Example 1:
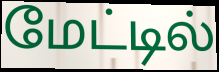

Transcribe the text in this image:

மேட்டில்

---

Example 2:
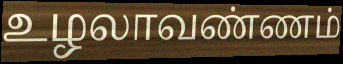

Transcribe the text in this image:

உழலாவண்ணம்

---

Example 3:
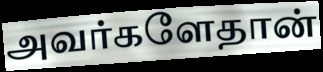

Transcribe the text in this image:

அவர்களேதான்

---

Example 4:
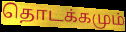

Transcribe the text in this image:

தொடக்கமும்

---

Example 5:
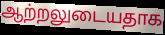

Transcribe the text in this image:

ஆற்றலுடையதாக